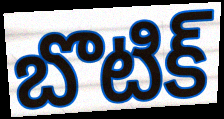
బొటిక్